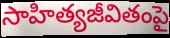
సాహిత్యజీవితంపై